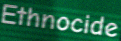
Ethnocide